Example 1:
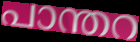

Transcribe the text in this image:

പാന്തറ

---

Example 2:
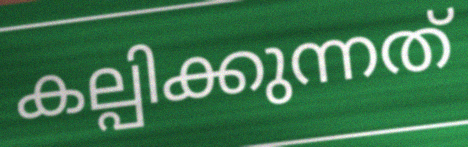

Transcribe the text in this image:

കല്പിക്കുന്നത്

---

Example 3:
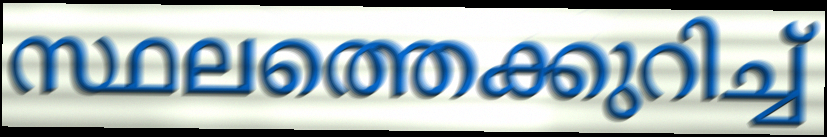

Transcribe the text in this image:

സ്ഥലത്തെക്കുറിച്ച്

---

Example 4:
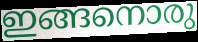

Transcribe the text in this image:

ഇങ്ങനൊരു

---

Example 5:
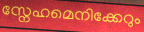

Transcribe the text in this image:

സ്നേഹമെനിക്കേറും